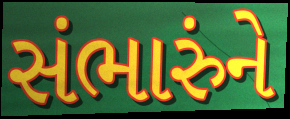
સંભારુંને